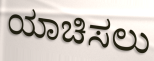
ಯಾಚಿಸಲು